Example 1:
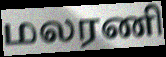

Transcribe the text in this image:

மலரணி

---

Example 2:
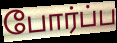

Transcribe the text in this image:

போர்ப்ப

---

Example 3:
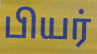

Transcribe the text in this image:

பியர்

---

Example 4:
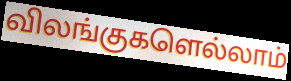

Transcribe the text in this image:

விலங்குகளெல்லாம்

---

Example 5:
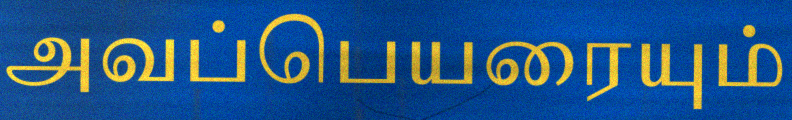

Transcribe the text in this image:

அவப்பெயரையும்